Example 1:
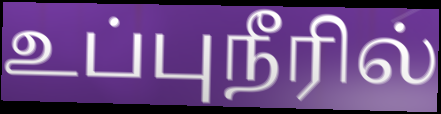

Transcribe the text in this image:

உப்புநீரில்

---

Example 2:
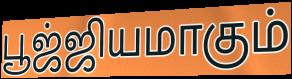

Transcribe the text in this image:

பூஜ்ஜியமாகும்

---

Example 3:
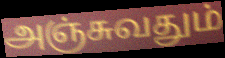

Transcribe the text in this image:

அஞ்சுவதும்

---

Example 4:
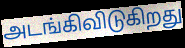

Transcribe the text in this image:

அடங்கிவிடுகிறது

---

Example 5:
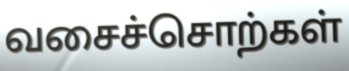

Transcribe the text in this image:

வசைச்சொற்கள்